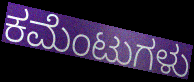
ಕಮೆಂಟುಗಳು